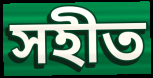
সহীত